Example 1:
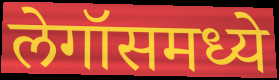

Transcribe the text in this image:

लेगॉसमध्ये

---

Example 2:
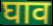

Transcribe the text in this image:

घाव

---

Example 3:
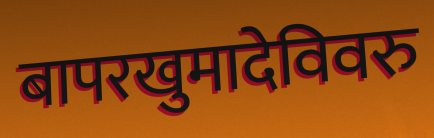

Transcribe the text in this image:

बापरखुमादेविवरु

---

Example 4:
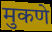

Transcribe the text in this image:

मुकणे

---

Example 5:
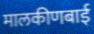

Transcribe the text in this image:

मालकीणबाई